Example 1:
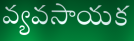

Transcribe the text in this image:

వ్యవసాయక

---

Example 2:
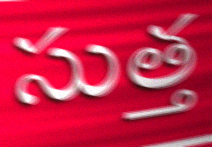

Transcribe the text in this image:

సుత్త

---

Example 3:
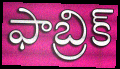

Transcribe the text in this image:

ఫాబ్రిక్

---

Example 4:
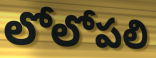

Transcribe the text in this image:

లోలోపలి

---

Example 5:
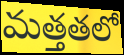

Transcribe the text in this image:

మత్తతలో